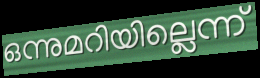
ഒന്നുമറിയില്ലെന്ന്